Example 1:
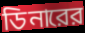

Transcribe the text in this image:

ডিনারের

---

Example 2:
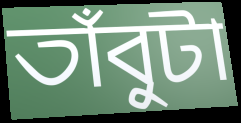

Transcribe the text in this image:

তাঁবুটা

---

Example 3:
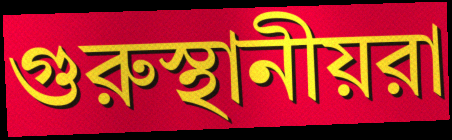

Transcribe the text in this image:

গুরুস্থানীয়রা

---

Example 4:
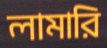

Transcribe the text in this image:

লামারি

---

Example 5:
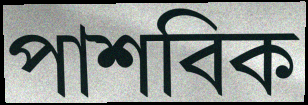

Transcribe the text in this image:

পাশবিক